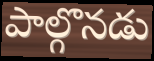
పాల్గొనడు